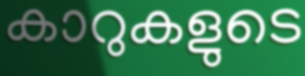
കാറുകളുടെ